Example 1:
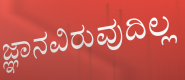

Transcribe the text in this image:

ಜ್ಞಾನವಿರುವುದಿಲ್ಲ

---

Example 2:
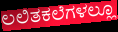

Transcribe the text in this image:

ಲಲಿತಕಲೆಗಳಲ್ಲೂ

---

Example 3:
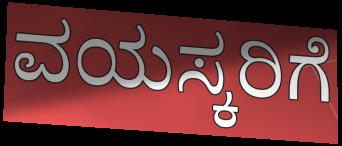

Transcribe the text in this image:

ವಯಸ್ಕರಿಗೆ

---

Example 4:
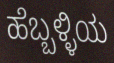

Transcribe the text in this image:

ಹೆಬ್ಬಳ್ಳಿಯ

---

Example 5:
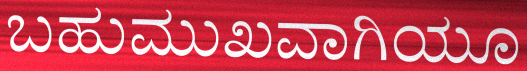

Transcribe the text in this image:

ಬಹುಮುಖವಾಗಿಯೂ